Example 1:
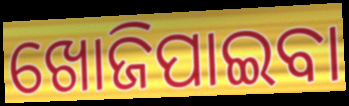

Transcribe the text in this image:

ଖୋଜିପାଇବା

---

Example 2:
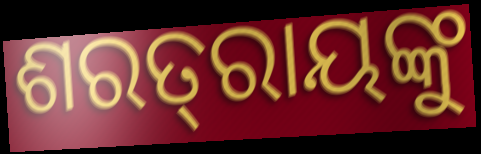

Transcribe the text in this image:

ଶରତ୍‌ରାୟଙ୍କୁ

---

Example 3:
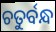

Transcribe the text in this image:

ଚତୁର୍ବନ୍ଧ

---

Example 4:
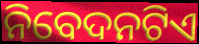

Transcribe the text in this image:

ନିବେଦନଟିଏ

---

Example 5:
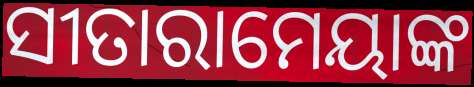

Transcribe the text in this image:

ସୀତାରାମେୟାଙ୍କ